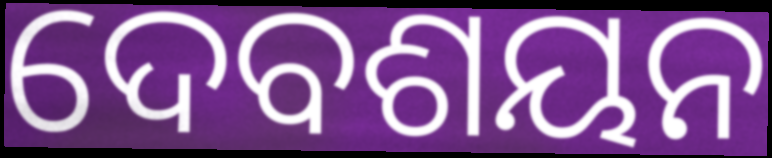
ଦେବଶୟନ